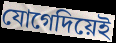
যোগেদিয়েই